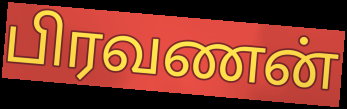
பிரவணன்